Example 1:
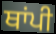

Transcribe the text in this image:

ਥਾਂਪੀ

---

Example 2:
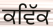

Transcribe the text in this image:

ਕਵਿੱਕ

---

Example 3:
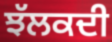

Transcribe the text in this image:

ਝੱਲਕਦੀ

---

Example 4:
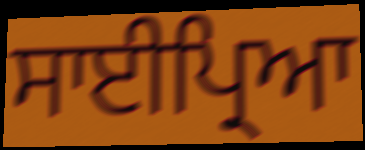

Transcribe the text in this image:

ਸਾਈਪ੍ਰਿਆ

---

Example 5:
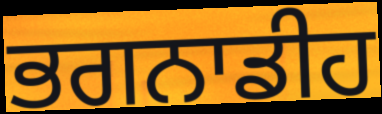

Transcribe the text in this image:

ਭਗਨਾਡੀਹ